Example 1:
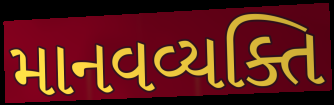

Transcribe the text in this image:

માનવવ્યક્તિ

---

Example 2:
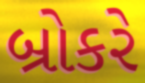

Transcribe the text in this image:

બ્રોકરે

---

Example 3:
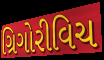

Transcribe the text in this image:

ગ્રિગોરીવિચ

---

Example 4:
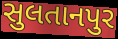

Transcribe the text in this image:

સુલતાનપુર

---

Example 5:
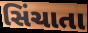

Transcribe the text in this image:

સિંચાતા